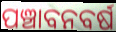
ପଞ୍ଚାବନବର୍ଷ